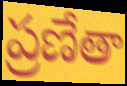
ప్రణేతా